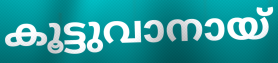
കൂട്ടുവാനായ്